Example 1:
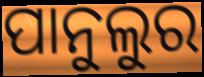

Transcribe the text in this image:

ପାନୁଲୁର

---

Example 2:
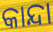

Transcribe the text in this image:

କାନ୍ଦା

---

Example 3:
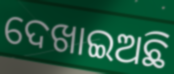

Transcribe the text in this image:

ଦେଖାଇଅଛି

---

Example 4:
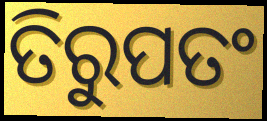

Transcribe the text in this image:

ତିରୁପତଂ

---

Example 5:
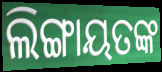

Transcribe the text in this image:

ଲିଙ୍ଗାୟତଙ୍କ